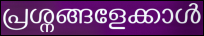
പ്രശ്നങ്ങളേക്കാൾ